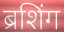
ब्रशिंग